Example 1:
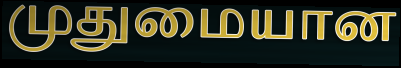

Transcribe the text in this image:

முதுமையான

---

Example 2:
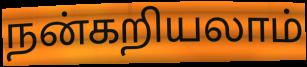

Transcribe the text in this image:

நன்கறியலாம்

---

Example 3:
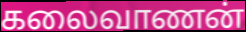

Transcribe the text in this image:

கலைவாணன்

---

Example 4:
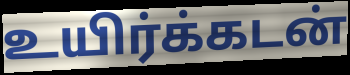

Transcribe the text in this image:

உயிர்க்கடன்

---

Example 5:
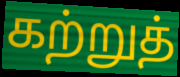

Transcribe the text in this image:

கற்றுத்